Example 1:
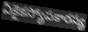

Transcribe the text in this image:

ఏకైకస్యోపకారస్య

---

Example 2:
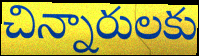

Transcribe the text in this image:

చిన్నారులకు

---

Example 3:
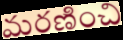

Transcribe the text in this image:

మరణించి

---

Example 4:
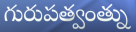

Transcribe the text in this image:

గురుపత్వంత్ను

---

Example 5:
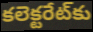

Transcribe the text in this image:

కలెక్టరేట్‌కు